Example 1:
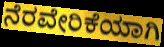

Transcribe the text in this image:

ನೆರವೇರಿಕೆಯಾಗಿ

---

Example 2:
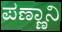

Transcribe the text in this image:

ಪಣ್ಣಾನಿ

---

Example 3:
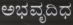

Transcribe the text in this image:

ಅಭವೃದಿಧ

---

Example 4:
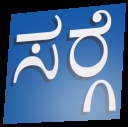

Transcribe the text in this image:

ಸರ್‍ಗೆ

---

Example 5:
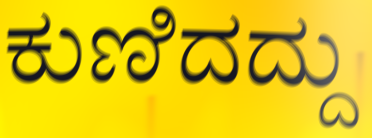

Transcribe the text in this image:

ಕುಣಿದದ್ದು